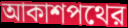
আকাশপথের